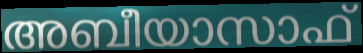
അബീയാസാഫ്